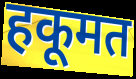
हकूमत